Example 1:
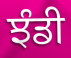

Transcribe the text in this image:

ਝੰਡੀ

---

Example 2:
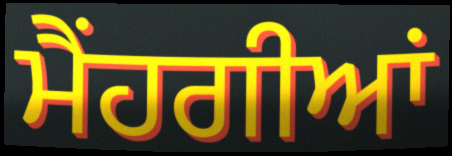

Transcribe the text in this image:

ਮੈਂਹਗੀਆਂ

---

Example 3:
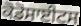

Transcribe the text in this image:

ਕੋਡੋਸਾਈਟਸ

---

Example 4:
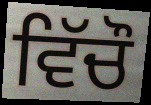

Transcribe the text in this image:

ਵਿੱਚੌ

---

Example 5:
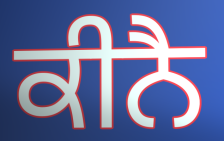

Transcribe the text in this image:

ਕੀਨੈ